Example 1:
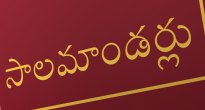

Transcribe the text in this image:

సాలమాండర్లు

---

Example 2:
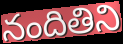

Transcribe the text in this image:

నందితిని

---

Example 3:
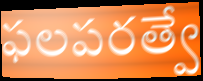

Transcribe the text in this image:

ఫలపరత్వే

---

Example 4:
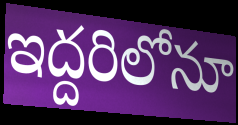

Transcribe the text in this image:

ఇద్దరిలోనూ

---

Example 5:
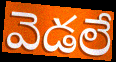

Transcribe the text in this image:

వెడలే